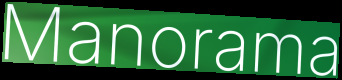
Manorama